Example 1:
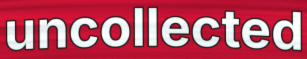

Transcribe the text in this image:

uncollected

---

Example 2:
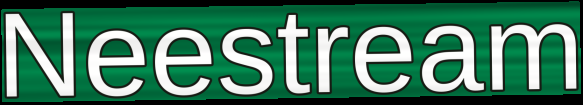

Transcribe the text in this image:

Neestream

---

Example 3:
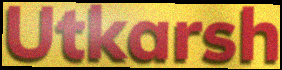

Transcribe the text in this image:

Utkarsh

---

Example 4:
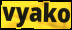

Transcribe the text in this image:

vyako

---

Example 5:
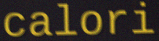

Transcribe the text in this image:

calori